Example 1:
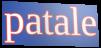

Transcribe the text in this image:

patale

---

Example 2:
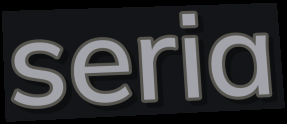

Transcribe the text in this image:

seria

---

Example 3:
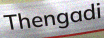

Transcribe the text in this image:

Thengadi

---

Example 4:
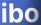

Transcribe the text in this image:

ibo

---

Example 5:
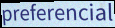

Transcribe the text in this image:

preferencial